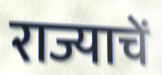
राज्याचें